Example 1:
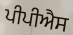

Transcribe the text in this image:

ਪੀਪੀਐਸ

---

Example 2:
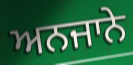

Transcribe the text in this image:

ਅਨਜਾਨੇ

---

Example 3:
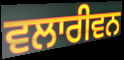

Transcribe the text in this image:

ਵਲਾਰੀਵਨ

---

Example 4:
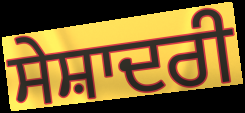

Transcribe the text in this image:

ਸੇਸ਼ਾਦਰੀ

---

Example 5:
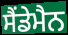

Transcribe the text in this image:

ਸੈਂਡੇਮੈਨ